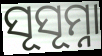
ସୂସୂମ୍ନା